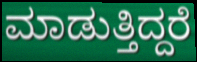
ಮಾಡುತ್ತಿದ್ದರೆ